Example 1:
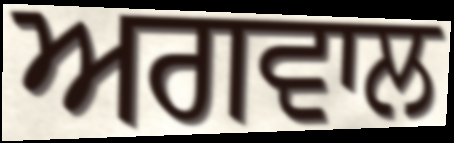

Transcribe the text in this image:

ਅਗਵਾਲ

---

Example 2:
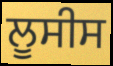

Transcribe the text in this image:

ਲੂਸੀਸ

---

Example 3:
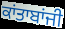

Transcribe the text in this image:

ਕਾਂਤਾਬਾਂਜੀ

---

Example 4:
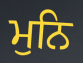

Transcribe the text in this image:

ਮੁਨਿ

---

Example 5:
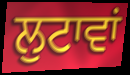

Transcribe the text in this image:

ਲੁਟਾਵਾਂ